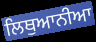
ਲਿਥੁਆਨੀਆ